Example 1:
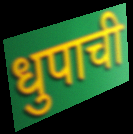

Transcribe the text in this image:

धुपाची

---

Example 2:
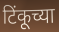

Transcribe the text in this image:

टिंकूच्या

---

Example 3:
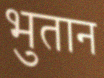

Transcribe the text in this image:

भुतान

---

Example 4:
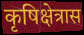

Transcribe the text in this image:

कृषिक्षेत्रास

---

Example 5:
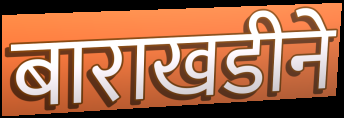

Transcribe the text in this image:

बाराखडीने